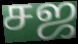
சஜ